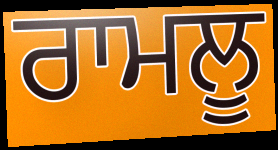
ਰਾਮਲੂ